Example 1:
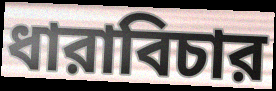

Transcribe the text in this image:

ধারাবিচার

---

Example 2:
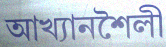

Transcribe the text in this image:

আখ্যানশৈলী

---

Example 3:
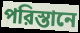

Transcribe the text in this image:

পরিস্তানে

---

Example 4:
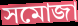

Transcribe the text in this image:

সমোজা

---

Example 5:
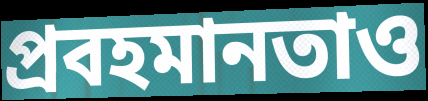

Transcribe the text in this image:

প্রবহমানতাও